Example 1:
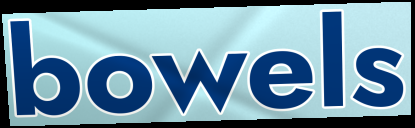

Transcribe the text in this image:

bowels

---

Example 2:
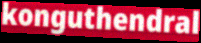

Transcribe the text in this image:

konguthendral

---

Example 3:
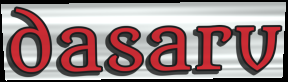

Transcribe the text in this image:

dasaru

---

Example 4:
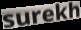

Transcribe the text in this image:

surekh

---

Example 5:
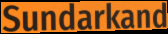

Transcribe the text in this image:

Sundarkand